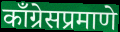
काँग्रेसप्रमाणे